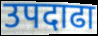
उपदाढा